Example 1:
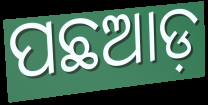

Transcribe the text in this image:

ପଛଆଡ଼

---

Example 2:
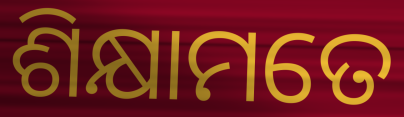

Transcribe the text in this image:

ଶିକ୍ଷାମତେ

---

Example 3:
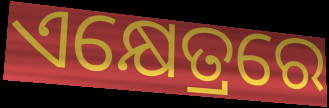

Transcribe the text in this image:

ଏକ୍ଷେତ୍ରରେ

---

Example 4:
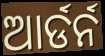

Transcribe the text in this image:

ଆର୍ଡର୍ନ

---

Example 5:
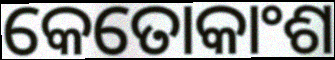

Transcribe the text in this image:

କେତୋକାଂଶ